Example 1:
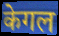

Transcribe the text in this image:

केगल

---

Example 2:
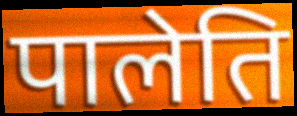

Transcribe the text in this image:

पालेति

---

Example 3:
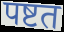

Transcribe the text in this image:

पष्टत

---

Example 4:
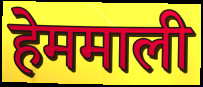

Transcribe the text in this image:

हेममाली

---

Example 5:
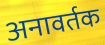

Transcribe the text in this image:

अनावर्तक